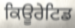
ਕਿਊਰੇਟਿਡ